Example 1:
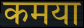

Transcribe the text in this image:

कमया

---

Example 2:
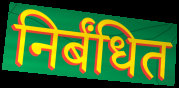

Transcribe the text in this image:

निर्बंधित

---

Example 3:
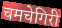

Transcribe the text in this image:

चमचेगिरी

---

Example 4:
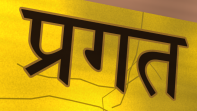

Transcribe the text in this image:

प्रगत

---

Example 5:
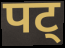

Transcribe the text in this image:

पट्